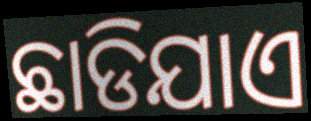
ଛାଡିଯାଏ